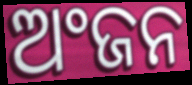
ଅଂଜନ